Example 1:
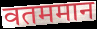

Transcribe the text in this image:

वतममान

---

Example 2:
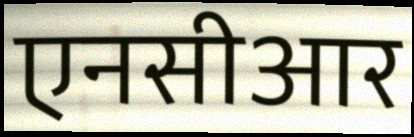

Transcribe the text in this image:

एनसीआर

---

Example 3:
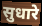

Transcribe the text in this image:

सुधारे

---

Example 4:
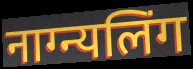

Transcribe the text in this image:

नाग्न्यलिंग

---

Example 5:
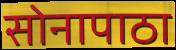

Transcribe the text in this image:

सोनापाठा